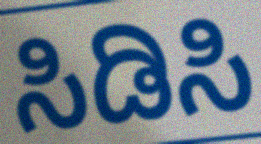
ಸಿಡಿಸಿ